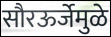
सौरऊर्जेमुळे